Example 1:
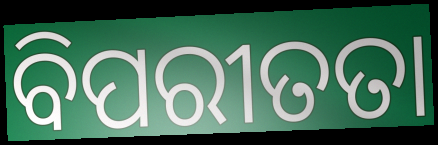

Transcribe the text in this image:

ବିପରୀତତା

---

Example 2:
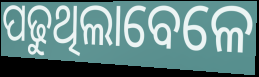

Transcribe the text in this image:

ପଢୁଥିଲାବେଳେ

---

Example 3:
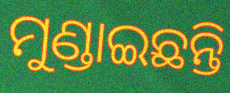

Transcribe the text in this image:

ମୁଣ୍ଡାଇଛନ୍ତି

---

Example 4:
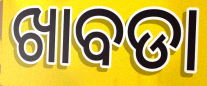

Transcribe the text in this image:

ଖାବଡା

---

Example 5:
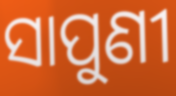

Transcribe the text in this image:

ସାପୁଣୀ